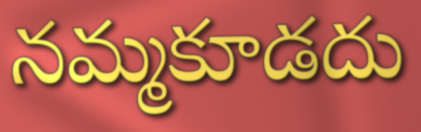
నమ్మకూడదు